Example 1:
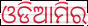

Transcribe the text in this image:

ଓଡିଆମିର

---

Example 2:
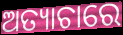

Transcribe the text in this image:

ଅତ୍ୟାଚାରେ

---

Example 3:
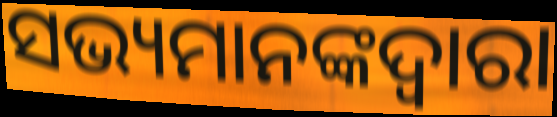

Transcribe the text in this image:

ସଭ୍ୟମାନଙ୍କଦ୍ୱାରା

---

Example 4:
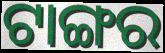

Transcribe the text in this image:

ଟାଙ୍ଗର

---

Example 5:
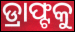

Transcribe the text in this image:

ଡ୍ରାଫ୍ଟକୁ